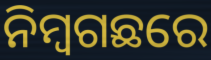
ନିମ୍ବଗଛରେ